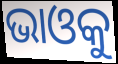
ଭାଓକୁ